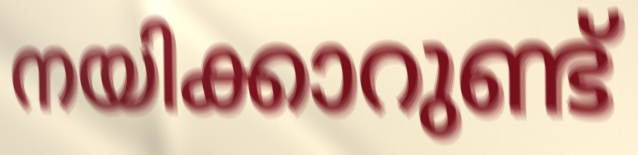
നയിക്കാറുണ്ട്